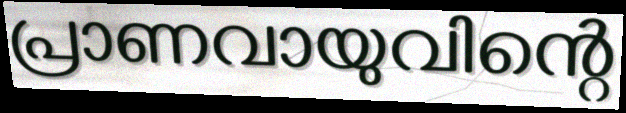
പ്രാണവായുവിന്റെ